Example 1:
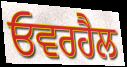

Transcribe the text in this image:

ਓਵਰਹੈਲ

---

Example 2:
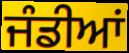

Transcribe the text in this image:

ਜੰਡੀਆਂ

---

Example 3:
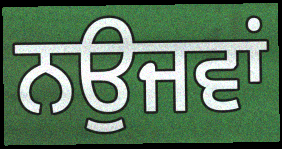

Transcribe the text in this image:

ਨਉਜਵਾਂ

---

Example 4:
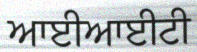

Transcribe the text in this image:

ਆਈਆਈਟੀ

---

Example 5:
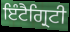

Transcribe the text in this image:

ਇੰਟੈਗ੍ਰਿਟੀ